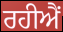
ਰਹੀਐਂ